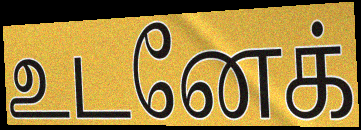
உடனேக்